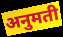
अनुमती